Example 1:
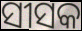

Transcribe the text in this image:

ସୀସକ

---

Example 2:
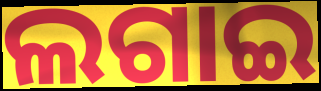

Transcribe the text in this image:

ଲଗାଇ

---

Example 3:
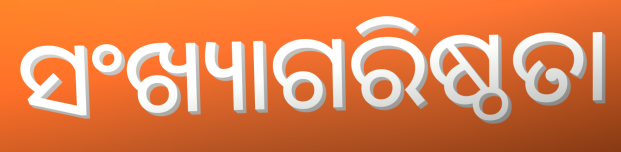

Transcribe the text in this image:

ସଂଖ୍ୟାଗରିଷ୍ଠତା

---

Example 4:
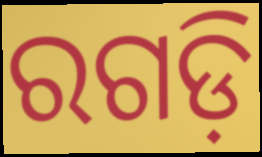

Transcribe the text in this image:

ରଗଡ଼ି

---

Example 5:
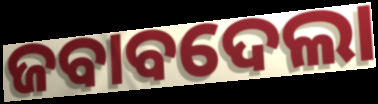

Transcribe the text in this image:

ଜବାବଦେଲା